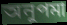
অনুপমা